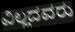
ವಿಲ್ಲದವರು